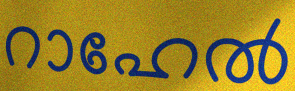
റാഹേൽ